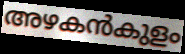
അഴകൻകുളം